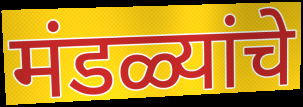
मंडळ्यांचे